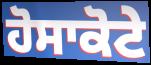
ਹੋਸਾਕੋਟੇ